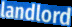
landlord